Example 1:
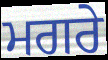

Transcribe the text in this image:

ਮਗਰੇ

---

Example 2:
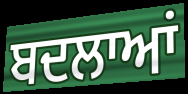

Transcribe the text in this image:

ਬਦਲਾਆਂ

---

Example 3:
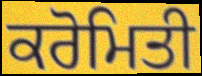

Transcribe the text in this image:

ਕਰੋਮਿਤੀ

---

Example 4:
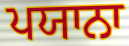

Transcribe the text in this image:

ਪਯਾਨਾ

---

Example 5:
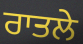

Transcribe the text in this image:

ਰਾਤਲੇ